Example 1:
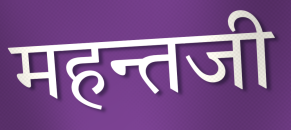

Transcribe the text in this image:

महन्तजी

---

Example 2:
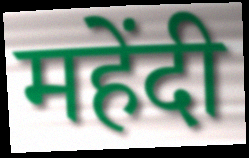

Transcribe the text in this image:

महेंदी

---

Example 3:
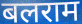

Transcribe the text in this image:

बलराम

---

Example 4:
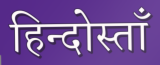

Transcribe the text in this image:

हिन्दोस्ताँ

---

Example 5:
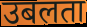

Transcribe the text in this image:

उबलता